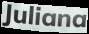
Juliana